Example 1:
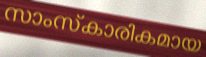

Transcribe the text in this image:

സാംസ്‌കാരികമായ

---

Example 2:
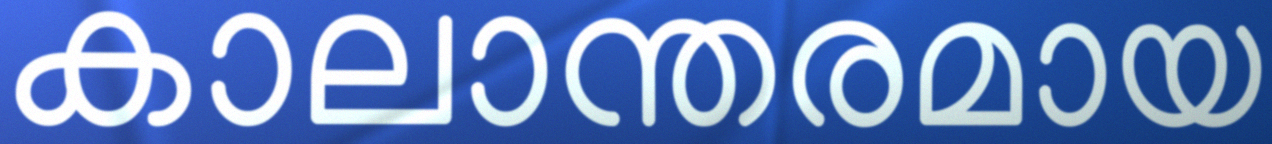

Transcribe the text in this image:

കാലാന്തരമായ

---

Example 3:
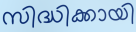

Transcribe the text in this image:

സിദ്ധിക്കായി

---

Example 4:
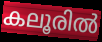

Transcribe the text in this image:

കലൂരിൽ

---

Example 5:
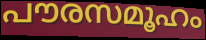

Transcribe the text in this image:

പൗരസമൂഹം